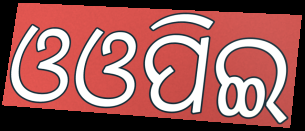
ଓଓପିଇ